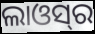
ଲାଓସ୍‌ର